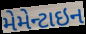
મેમેન્ટાઇન